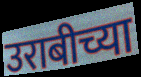
उराबीच्या